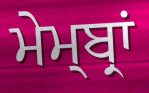
ਮੇਮ੍ਬ੍ਰਾਂ